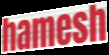
hamesh